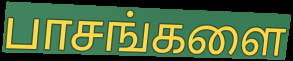
பாசங்களை